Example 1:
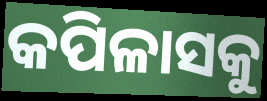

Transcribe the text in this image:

କପିଳାସକୁ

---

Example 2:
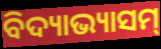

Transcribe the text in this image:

ବିଦ୍ୟାଭ୍ୟାସମ୍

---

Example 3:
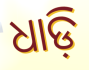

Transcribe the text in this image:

ଧାଡ଼ି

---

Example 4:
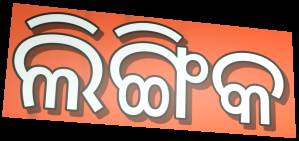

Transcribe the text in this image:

ଲିଙ୍ଗିକ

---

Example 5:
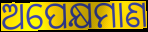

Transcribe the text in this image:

ଅପେକ୍ଷମାଣ